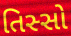
તિસ્સો